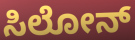
ಸಿಲೋನ್